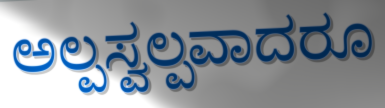
ಅಲ್ಪಸ್ವಲ್ಪವಾದರೂ